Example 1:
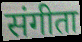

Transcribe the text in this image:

संगीता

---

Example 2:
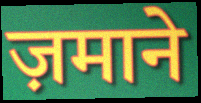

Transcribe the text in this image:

ज़माने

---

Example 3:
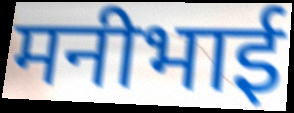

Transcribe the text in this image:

मनीभाई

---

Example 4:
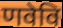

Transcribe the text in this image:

णवेवि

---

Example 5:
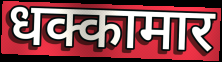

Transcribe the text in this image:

धक्कामार